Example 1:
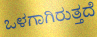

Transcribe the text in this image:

ಒಳಗಾಗಿರುತ್ತದೆ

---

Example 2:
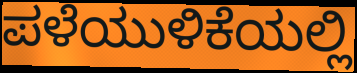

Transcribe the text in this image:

ಪಳೆಯುಳಿಕೆಯಲ್ಲಿ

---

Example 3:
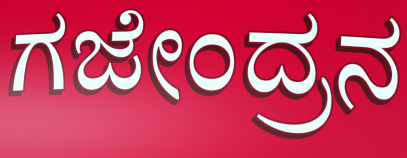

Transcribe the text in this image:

ಗಜೇಂದ್ರನ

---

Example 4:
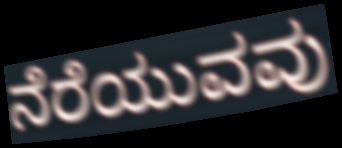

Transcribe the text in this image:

ನೆರೆಯುವವು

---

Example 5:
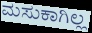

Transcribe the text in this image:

ಮಸುಕಾಗಿಲ್ಲ